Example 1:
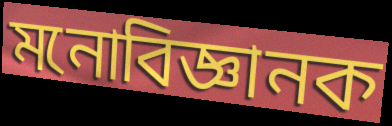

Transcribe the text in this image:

মনোবিজ্ঞানক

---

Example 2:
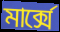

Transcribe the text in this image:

মাৰ্ক্সে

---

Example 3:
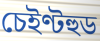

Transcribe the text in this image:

চেইণ্টহুড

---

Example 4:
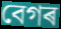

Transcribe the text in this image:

বেগৰ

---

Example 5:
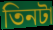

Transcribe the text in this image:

তিনটা